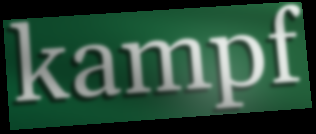
kampf